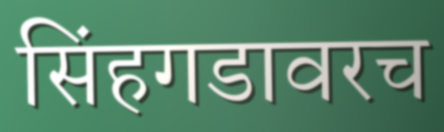
सिंहगडावरच